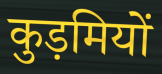
कुड़मियों